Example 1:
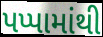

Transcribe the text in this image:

પપ્પામાંથી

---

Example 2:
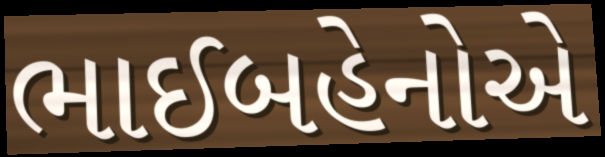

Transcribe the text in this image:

ભાઈબહેનોએ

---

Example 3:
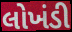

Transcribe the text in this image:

લોખંડી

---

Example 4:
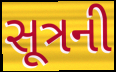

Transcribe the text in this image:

સૂત્રની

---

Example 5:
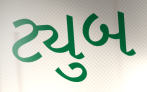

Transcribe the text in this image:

ટ્યુબ